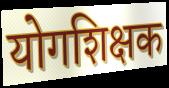
योगशिक्षक